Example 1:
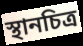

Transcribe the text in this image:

স্থানচিত্র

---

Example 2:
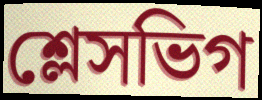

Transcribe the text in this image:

শ্লেসভিগ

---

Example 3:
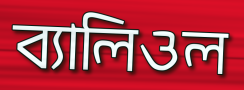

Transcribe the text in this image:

ব্যালিওল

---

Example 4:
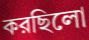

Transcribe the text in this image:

করছিলো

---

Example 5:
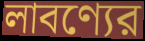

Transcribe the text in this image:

লাবণ্যের